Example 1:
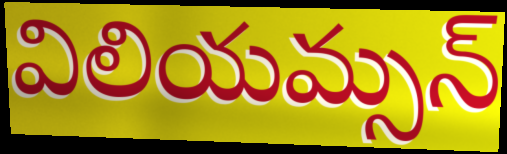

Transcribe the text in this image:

విలియమ్సన్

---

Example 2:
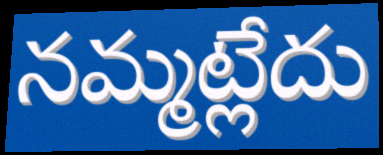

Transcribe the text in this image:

నమ్మట్లేదు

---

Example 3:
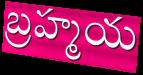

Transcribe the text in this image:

బ్రహ్మయ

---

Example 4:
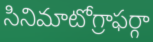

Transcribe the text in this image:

సినిమాటోగ్రాఫర్గా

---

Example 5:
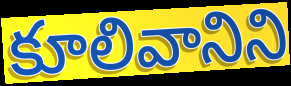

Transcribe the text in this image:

కూలివానిని